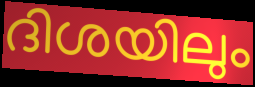
ദിശയിലും